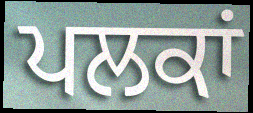
ਪਲਕਾਂ